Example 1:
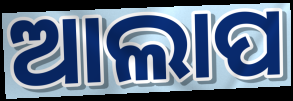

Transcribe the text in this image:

ଆଲାପ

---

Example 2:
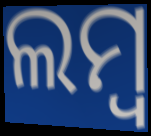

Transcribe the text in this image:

ଲମ୍ବ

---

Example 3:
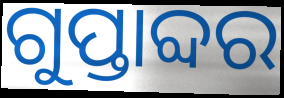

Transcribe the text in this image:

ଗୁପ୍ତାବ୍ଦର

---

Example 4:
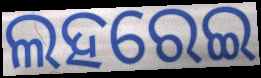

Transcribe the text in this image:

ଲହରେଇ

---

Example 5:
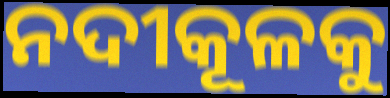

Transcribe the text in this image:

ନଦୀକୂଳକୁ